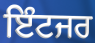
ਇੰਟਜਰ